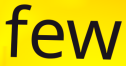
few